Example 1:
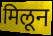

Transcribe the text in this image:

मिलून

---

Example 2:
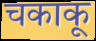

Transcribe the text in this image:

चकाकू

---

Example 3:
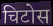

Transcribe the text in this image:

चिटोस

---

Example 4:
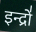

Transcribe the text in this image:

इन्द्रो॑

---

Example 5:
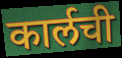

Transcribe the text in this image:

कार्लची